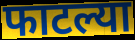
फाटल्या